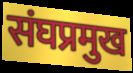
संघप्रमुख